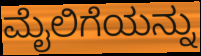
ಮೈಲಿಗೆಯನ್ನು